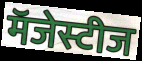
मॅजेस्टीज